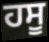
ਹਸੂ